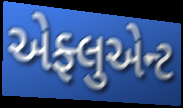
એફ્લુએન્ટ